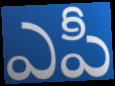
ఎపీ